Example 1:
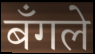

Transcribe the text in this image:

बँगले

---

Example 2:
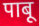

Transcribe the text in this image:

पाबू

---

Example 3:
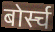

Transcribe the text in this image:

बोर्स्च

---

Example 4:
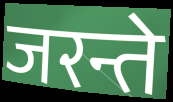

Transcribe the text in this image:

जरन्ते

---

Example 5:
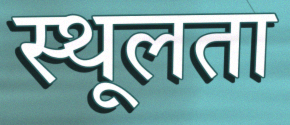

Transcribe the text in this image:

स्थूलता